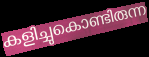
കളിച്ചുകൊണ്ടിരുന്ന